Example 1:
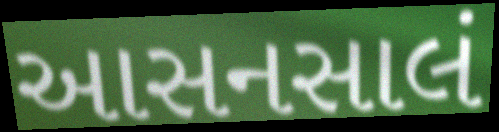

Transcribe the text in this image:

આસનસાલં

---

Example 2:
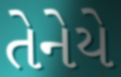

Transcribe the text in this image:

તેનેયે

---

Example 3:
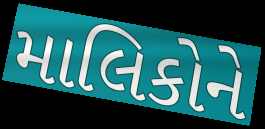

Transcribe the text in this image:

માલિકોને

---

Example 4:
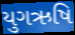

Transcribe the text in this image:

યુગઋષિ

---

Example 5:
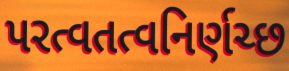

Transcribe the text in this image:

પરત્વતત્વનિર્ણચ્છ